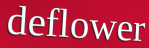
deflower